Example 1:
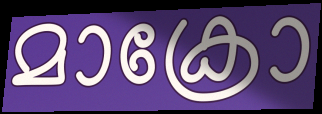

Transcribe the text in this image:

മാക്രോ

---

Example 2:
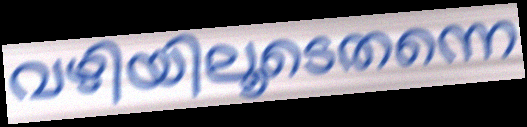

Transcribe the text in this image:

വഴിയിലൂടെതന്നെ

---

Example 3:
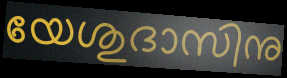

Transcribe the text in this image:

യേശുദാസിനു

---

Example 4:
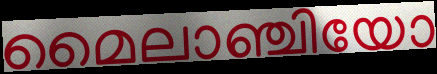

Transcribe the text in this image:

മൈലാഞ്ചിയോ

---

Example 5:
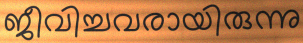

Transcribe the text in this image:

ജീവിച്ചവരായിരുന്നു